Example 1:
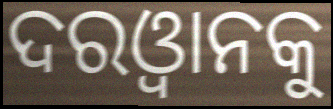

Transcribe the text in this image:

ଦରଓ୍ୱାନକୁ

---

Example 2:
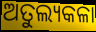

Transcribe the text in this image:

ଅତୁଲ୍ୟକଳା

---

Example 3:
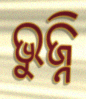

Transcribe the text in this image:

ଭୁଜ୍ନି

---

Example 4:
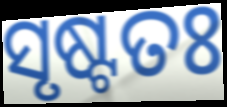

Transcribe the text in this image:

ସୃଷ୍ଟତଃ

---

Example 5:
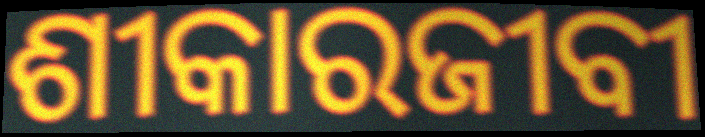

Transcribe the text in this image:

ଶୀକାରଜୀବୀ